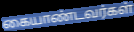
கையாண்டவர்கள்